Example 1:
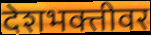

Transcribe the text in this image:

देशभक्तीवर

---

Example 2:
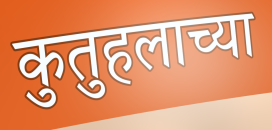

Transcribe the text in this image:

कुतुहलाच्या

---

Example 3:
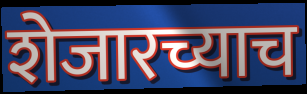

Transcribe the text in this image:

शेजारच्याच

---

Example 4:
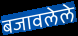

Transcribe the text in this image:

बजावलेले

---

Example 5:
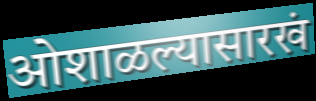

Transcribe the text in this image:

ओशाळल्यासारखं